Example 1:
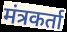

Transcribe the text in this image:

मंत्रकर्ता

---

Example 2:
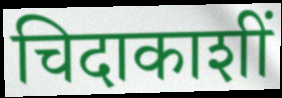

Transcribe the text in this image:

चिदाकाशीं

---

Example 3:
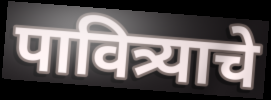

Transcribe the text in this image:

पावित्र्याचे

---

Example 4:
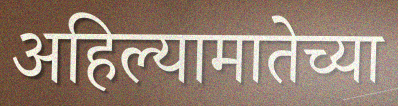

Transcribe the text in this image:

अहिल्यामातेच्या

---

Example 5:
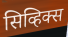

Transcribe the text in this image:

सिव्हिक्स